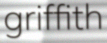
griffith